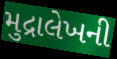
મુદ્રાલેખની